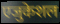
एजुकेशल